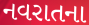
નવરાતના